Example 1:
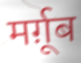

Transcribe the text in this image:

मर्ग़ूब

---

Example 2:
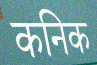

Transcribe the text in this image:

कनिक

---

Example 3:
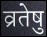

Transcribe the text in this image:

व्रतेषु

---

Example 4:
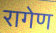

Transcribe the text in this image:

रागेण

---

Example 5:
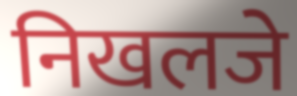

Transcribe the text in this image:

निखलजे